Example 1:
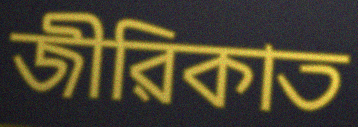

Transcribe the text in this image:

জীৱিকাত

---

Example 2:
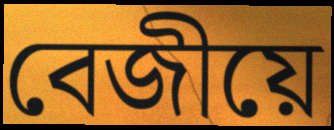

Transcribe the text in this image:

বেজীয়ে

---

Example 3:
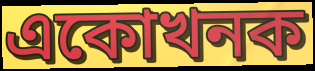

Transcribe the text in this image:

একোখনক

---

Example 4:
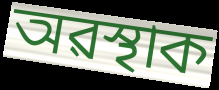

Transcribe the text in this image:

অৱস্থাক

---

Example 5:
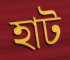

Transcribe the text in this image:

হাট